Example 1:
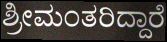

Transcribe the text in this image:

ಶ್ರೀಮಂತರಿದ್ದಾರೆ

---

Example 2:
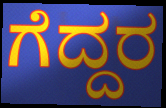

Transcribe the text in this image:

ಗೆದ್ದರ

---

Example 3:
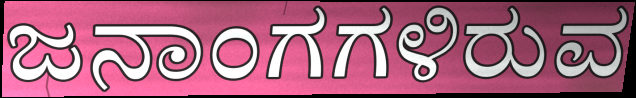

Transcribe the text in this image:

ಜನಾಂಗಗಳಿರುವ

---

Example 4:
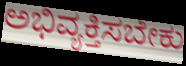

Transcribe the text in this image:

ಅಭಿವ್ಯಕ್ತಿಸಬೇಕು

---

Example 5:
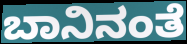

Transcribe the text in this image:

ಬಾನಿನಂತೆ